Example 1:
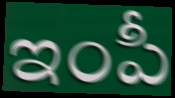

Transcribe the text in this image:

ఇంపీ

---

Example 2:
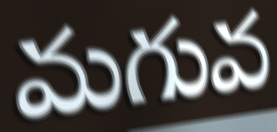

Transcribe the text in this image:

మగువ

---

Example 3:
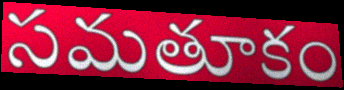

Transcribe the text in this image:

సమతూకం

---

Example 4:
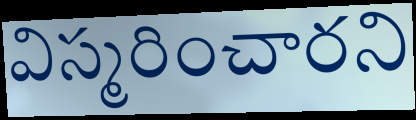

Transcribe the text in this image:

విస్మరించారని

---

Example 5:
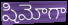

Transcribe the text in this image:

షిమోగా